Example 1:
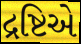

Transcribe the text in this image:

દ્રષ્ટિએ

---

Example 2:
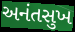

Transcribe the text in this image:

અનંતસુખ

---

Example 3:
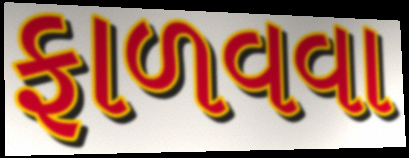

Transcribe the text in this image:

ફાળવવા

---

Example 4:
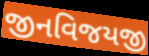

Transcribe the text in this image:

જીનવિજયજી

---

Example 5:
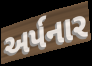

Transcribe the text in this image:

અર્પનાર